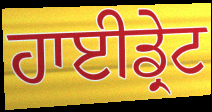
ਹਾਈਡ੍ਰੇਟ